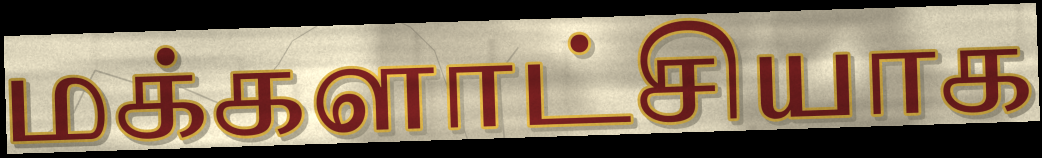
மக்களாட்சியாக